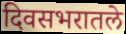
दिवसभरातले